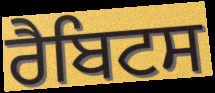
ਰੈਬਿਟਸ